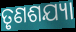
ତୃଣଶଯ୍ୟା